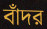
বাঁদর